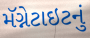
મૅગ્નેટાઇટનું